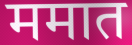
ममात